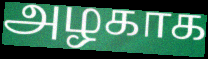
அழகாக